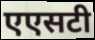
एएसटी